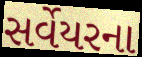
સર્વેયરના